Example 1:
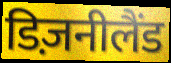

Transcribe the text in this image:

डिज़नीलैंड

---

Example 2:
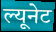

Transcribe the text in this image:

ल्यूनेट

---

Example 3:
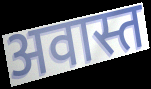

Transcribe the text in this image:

अवास्त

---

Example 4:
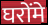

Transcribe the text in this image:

घरोंमे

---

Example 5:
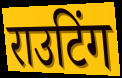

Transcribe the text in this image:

राउटिंग